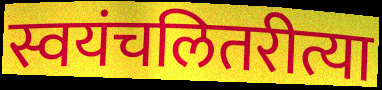
स्वयंचलितरीत्या